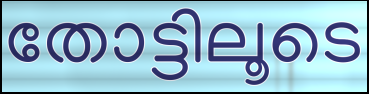
തോട്ടിലൂടെ